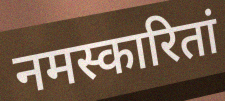
नमस्कारितां